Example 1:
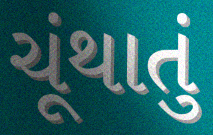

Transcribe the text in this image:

ચૂંથાતું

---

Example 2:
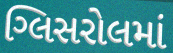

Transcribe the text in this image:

ગ્લિસરોલમાં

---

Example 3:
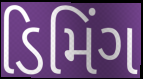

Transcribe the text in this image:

ડિમિંગ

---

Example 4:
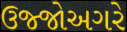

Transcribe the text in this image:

ઉજ્જોઅગરે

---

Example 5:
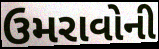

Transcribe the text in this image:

ઉમરાવોની